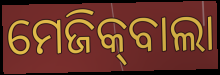
ମେଜିକ୍‍ବାଲା